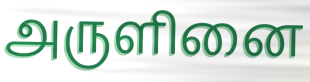
அருளினை